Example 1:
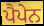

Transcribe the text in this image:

ਪੈਪੇਨ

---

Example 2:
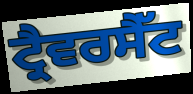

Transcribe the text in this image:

ਟ੍ਰੈਵਰਸੈੱਟ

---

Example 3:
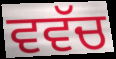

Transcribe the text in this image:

ਵਵੱਚ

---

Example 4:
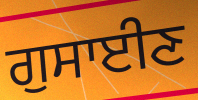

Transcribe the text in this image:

ਗੁਸਾਈਣ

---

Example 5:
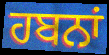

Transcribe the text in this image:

ਹਬਨਾਂ